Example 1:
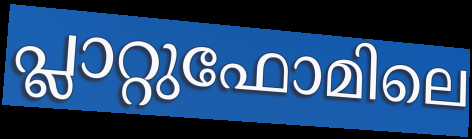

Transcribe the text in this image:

പ്ലാറ്റുഫോമിലെ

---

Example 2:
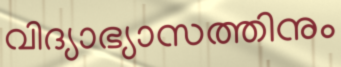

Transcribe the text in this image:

വിദ്യാഭ്യാസത്തിനും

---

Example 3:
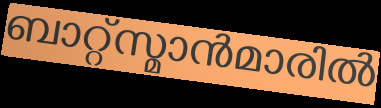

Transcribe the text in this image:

ബാറ്റ്സ്മാൻമാരിൽ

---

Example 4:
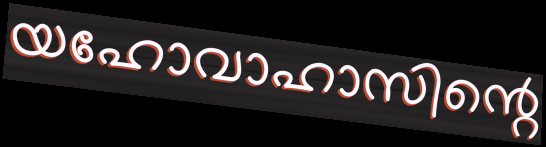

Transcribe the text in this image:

യഹോവാഹാസിന്റെ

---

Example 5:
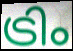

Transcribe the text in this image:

ട്രിം